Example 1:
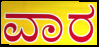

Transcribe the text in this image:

ವಾರ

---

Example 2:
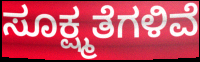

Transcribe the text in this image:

ಸೂಕ್ಷ್ಮತೆಗಳಿವೆ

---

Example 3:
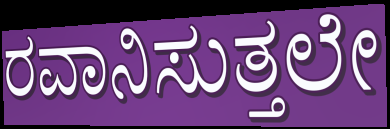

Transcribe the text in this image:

ರವಾನಿಸುತ್ತಲೇ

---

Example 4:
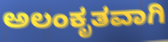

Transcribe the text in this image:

ಅಲಂಕೃತವಾಗಿ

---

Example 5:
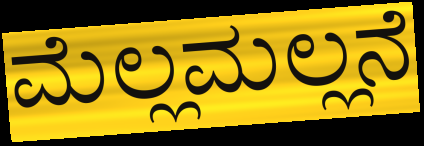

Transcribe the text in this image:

ಮೆಲ್ಲಮಲ್ಲನೆ